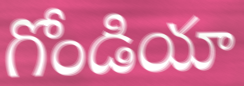
గోండియా